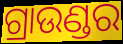
ଗ୍ରାଉଣ୍ଡର